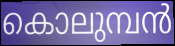
കൊലുമ്പൻ